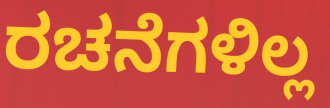
ರಚನೆಗಳಿಲ್ಲ